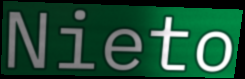
Nieto